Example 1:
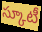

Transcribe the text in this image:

స్కూటీ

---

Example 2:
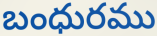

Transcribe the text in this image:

బంధురము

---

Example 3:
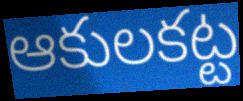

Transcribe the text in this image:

ఆకులకట్ట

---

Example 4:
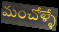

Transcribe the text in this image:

మంచోళ్ళే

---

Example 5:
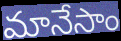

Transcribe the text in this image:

మానేసాం